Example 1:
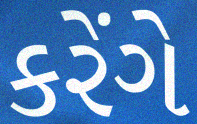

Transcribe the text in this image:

કરેંગે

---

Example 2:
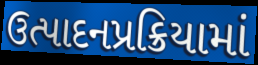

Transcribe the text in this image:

ઉત્પાદનપ્રક્રિયામાં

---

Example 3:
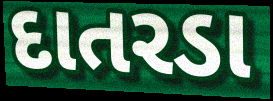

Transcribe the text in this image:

દાતરડા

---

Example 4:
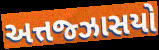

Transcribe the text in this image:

અત્તજ્ઝાસયો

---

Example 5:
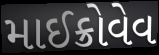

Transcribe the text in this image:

માઈક્રોવેવ